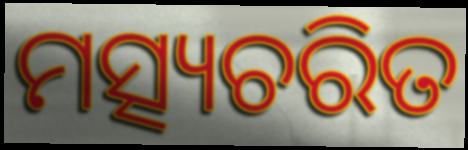
ମତ୍ସ୍ୟଚରିତ